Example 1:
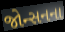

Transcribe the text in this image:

જોન્સનના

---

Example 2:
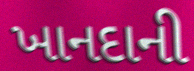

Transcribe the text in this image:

ખાનદાની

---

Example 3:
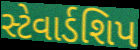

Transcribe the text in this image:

સ્ટેવાર્ડશિપ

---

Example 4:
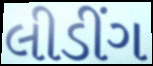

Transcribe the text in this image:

લીડીંગ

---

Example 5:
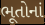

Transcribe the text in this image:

ભૂતોનાં